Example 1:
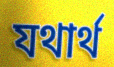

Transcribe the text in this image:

যথাৰ্থ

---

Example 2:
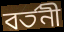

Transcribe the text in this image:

বৰ্তনী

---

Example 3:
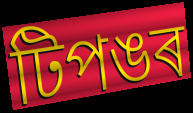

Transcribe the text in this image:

টিপঙৰ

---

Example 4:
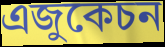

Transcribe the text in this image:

এজুকেচন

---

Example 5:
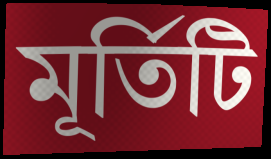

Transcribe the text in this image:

মূৰ্তিটি